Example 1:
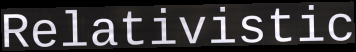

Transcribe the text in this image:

Relativistic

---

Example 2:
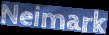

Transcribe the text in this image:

Neimark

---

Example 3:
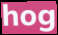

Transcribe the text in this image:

hog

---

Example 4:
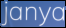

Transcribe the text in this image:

janya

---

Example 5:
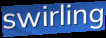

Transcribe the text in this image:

swirling